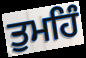
ਤੁਮਹਿੰ